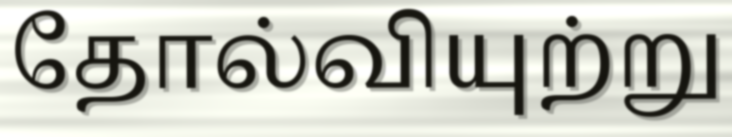
தோல்வியுற்று